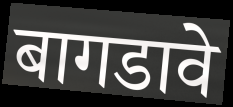
बागडावे